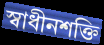
স্বাধীনশক্তি